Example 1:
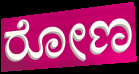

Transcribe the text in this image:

ರೋಣ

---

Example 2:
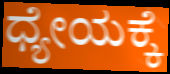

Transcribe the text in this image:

ಧ್ಯೇಯಕ್ಕೆ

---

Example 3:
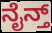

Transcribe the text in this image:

ನೈನ್ತ್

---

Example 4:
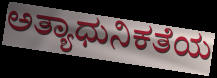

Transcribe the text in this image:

ಅತ್ಯಾಧುನಿಕತೆಯ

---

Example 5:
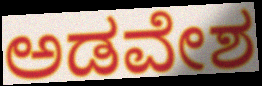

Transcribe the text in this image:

ಅಡವೇಶ